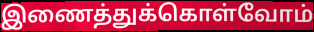
இணைத்துக்கொள்வோம்